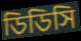
ডিডিসি